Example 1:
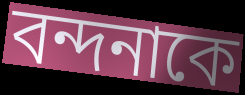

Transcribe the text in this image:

বন্দনাকে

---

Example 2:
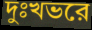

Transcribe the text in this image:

দুঃখভরে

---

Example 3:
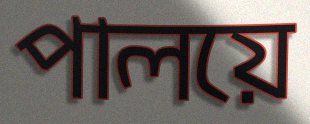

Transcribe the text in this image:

পালয়ে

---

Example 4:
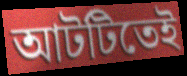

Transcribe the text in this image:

আটটিতেই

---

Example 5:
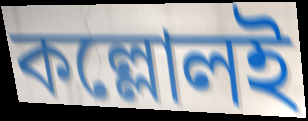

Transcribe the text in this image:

কল্লোলই